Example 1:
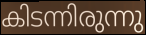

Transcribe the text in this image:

കിടന്നിരുന്നു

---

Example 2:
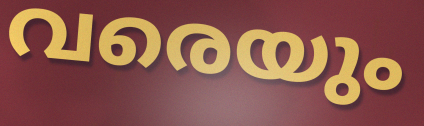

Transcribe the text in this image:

വരെയും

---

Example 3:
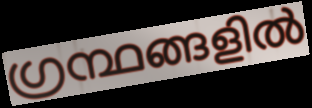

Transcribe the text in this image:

ഗ്രന്ഥങ്ങളിൽ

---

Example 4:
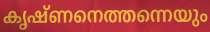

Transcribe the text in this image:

കൃഷ്ണനെത്തന്നെയും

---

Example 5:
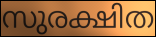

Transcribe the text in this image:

സുരക്ഷിത